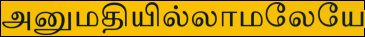
அனுமதியில்லாமலேயே